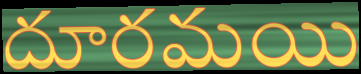
దూరమయి